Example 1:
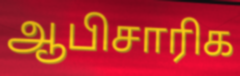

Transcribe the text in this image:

ஆபிசாரிக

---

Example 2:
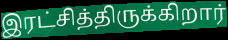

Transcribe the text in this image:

இரட்சித்திருக்கிறார்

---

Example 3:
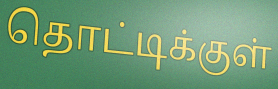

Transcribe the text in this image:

தொட்டிக்குள்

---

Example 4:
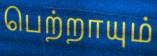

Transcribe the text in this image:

பெற்றாயும்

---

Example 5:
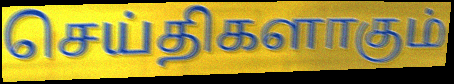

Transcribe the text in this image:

செய்திகளாகும்